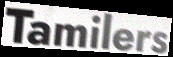
Tamilers